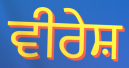
ਵੀਰੇਸ਼